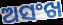
ଅସଂଖ